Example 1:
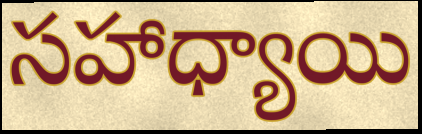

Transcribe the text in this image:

సహాధ్యాయి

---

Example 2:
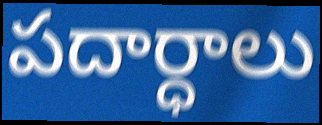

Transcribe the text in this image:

పదార్ధాలు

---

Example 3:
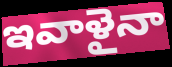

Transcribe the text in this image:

ఇవాళైనా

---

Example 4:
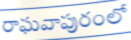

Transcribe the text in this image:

రాఘవాపురంలో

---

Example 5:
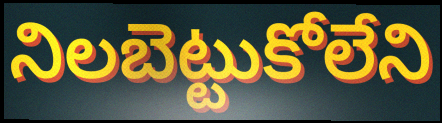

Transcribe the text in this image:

నిలబెట్టుకోలేని